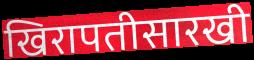
खिरापतीसारखी